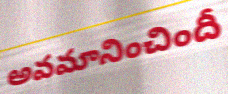
అవమానించిందీ